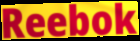
Reebok